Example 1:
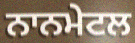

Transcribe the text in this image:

ਨਾਨਮੇਟਲ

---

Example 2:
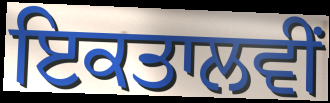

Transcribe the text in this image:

ਇਕਤਾਲਵੀਂ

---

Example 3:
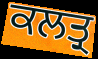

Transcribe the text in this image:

ਕਲਤ੍ਰ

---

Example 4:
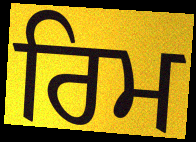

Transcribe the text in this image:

ਰਿਮ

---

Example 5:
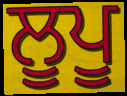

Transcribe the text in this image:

ਲੂਪੂ